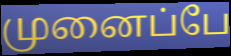
முனைப்பே